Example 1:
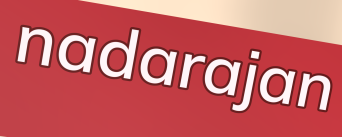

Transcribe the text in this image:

nadarajan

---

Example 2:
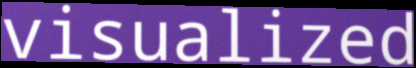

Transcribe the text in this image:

visualized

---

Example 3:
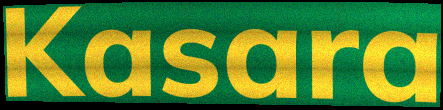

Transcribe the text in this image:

Kasara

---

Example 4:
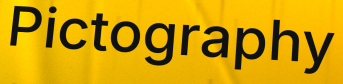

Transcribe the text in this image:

Pictography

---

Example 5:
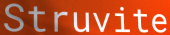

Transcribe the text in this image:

Struvite